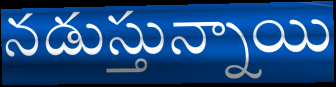
నడుస్తున్నాయి